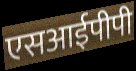
एसआईपीपी